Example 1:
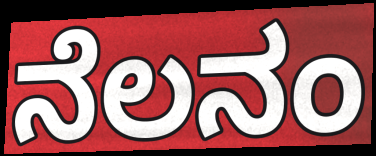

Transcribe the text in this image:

ನೆಲನಂ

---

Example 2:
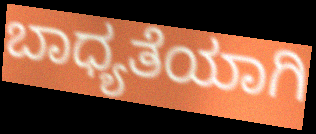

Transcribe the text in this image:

ಬಾಧ್ಯತೆಯಾಗಿ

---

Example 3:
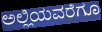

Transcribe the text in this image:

ಅಲ್ಲಿಯವರೆಗೂ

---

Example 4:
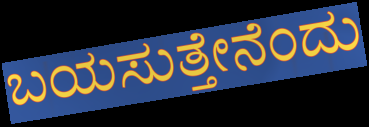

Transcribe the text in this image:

ಬಯಸುತ್ತೇನೆಂದು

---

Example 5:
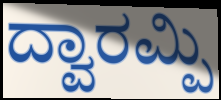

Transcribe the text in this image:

ದ್ವಾರಮ್ಪಿ